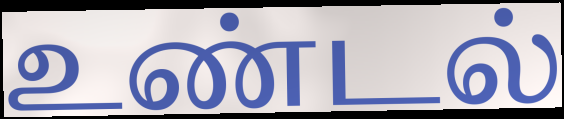
உண்டல்